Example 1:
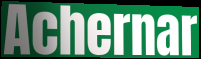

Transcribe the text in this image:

Achernar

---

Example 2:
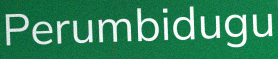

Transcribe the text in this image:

Perumbidugu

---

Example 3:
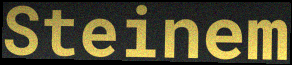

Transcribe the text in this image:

Steinem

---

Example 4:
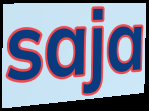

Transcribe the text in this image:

saja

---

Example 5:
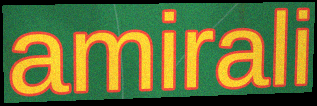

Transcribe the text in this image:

amirali